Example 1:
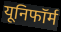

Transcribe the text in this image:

यूनिफॉर्म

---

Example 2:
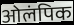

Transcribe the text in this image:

ओलंपिक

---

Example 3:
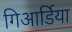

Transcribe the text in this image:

गिआर्डिया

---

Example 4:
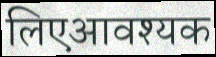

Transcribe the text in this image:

लिएआवश्यक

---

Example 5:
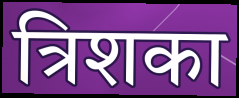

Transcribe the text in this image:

त्रिशका